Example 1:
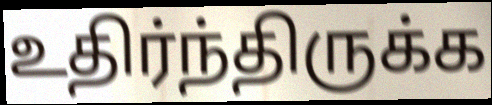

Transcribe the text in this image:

உதிர்ந்திருக்க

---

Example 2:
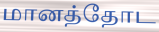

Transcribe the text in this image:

மானத்தோட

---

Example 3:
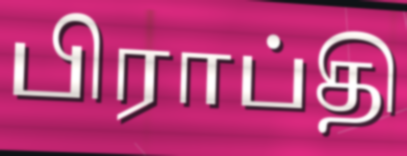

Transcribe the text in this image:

பிராப்தி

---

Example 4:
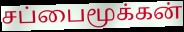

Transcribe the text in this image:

சப்பைமூக்கன்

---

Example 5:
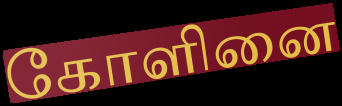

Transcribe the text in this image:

கோளினை